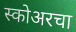
स्कोअरचा